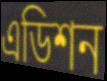
এডিশন